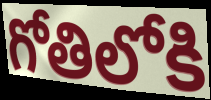
గోతిలోకి